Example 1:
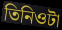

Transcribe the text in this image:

তিনিওটা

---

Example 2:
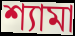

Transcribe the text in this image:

শ্যামা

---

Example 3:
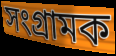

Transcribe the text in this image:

সংগ্ৰামক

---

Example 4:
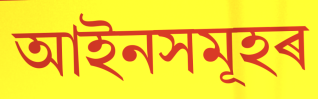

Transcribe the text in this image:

আইনসমূহৰ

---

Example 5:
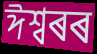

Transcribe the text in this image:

ঈশ্বৰৰ